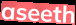
aseeth